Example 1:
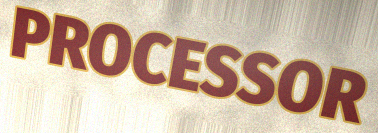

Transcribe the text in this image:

PROCESSOR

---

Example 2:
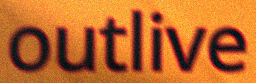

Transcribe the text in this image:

outlive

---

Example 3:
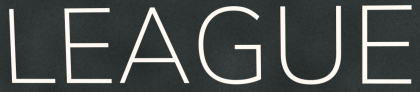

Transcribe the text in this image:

LEAGUE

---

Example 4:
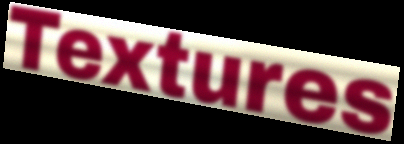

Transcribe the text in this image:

Textures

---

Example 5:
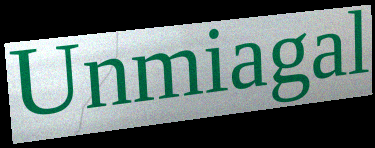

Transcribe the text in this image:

Unmiagal